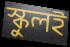
স্কুলই